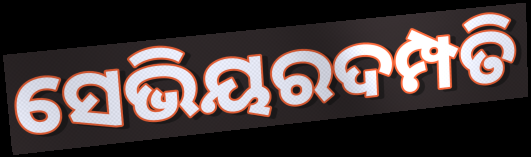
ସେଭିୟରଦମ୍ପତି